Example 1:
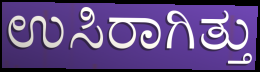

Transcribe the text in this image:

ಉಸಿರಾಗಿತ್ತು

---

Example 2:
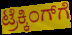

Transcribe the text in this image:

ಟ್ರೆಕ್ಕಿಂಗ್‌ಗೆ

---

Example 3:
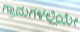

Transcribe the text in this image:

ಗ್ರಾಮಗಳಲ್ಲಿಯೇ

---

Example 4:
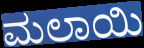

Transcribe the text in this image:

ಮಲಾಯಿ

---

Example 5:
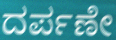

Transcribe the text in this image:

ದರ್ಪಣೇ